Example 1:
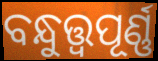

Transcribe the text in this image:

ବନ୍ଧୁତ୍ତ୍ୱପୂର୍ଣ୍ଣ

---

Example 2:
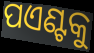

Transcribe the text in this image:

ପଏଣ୍ଟକୁ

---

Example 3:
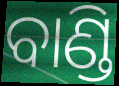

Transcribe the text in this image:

ବାଣ୍ଡି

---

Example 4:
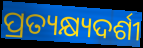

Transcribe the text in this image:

ପ୍ରତ୍ୟକ୍ଷ୍ୟଦର୍ଶୀ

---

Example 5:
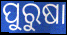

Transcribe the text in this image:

ପୁରୁଷା